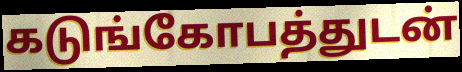
கடுங்கோபத்துடன்